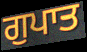
ਗੁਪਾਤ